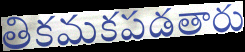
తికమకపడతారు